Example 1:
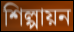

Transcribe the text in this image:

শিল্পায়ন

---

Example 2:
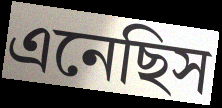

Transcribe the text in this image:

এনেছিস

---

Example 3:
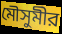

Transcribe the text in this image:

মৌসুমীর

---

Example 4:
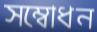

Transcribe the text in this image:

সম্বোধন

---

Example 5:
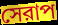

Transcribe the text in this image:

সেরাপ